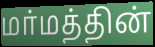
மர்மத்தின்